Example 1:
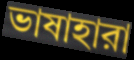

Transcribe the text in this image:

ভাষাহারা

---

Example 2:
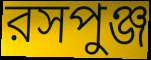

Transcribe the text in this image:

রসপুঞ্জ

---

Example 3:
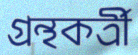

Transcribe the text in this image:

গ্রন্থকর্ত্রী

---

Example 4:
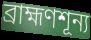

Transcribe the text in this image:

ব্রাহ্মণশূন্য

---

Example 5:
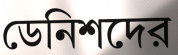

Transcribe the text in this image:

ডেনিশদের